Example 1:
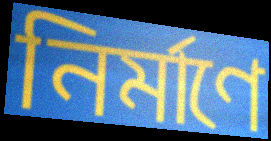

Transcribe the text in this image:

নির্মাণে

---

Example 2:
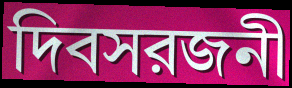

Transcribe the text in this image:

দিবসরজনী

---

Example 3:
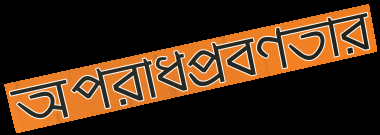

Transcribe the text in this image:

অপরাধপ্রবণতার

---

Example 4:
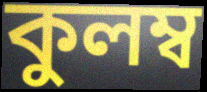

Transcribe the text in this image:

কুলম্ব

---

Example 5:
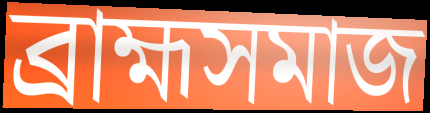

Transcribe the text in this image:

ব্রাহ্মসমাজ